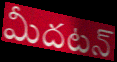
మీదటన్